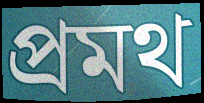
প্রমথ